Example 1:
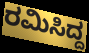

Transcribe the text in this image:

ರಮಿಸಿದ್ದ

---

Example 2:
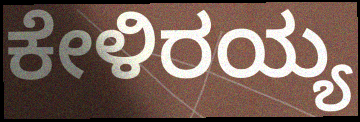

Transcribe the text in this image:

ಕೇಳಿರಯ್ಯ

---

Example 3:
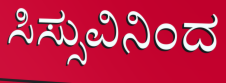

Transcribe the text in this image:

ಸಿಸ್ಸುವಿನಿಂದ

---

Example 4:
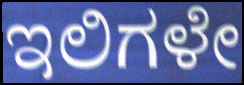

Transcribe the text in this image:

ಇಲಿಗಳೇ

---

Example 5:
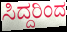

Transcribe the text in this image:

ಸಿದ್ದರಿಂದ